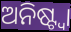
ଅନିଷ୍ଟ୍ୱା